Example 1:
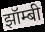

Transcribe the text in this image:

झॉम्बी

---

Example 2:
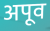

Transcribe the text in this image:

अपूव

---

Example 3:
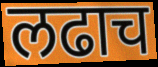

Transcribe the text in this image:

लढाच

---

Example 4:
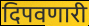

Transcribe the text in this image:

दिपवणारी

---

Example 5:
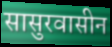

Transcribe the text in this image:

सासुरवासीन